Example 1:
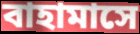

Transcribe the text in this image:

বাহামাসে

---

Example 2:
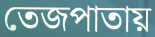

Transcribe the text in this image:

তেজপাতায়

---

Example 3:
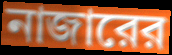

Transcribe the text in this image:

নাজারের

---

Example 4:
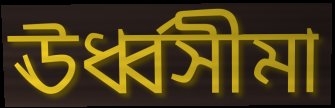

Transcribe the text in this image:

ঊর্ধ্বসীমা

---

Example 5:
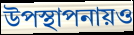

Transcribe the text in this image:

উপস্থাপনায়ও